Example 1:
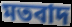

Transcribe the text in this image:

মতবাদ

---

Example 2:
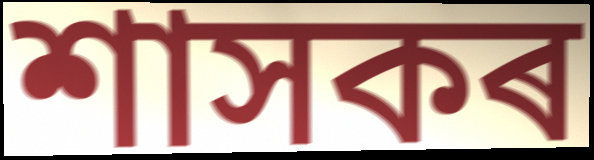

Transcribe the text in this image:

শাসকৰ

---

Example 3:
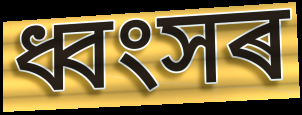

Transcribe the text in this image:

ধ্বংসৰ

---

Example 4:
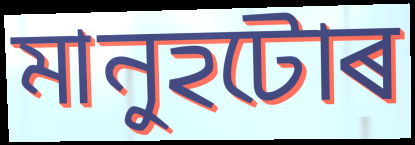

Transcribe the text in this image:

মানুহটোৰ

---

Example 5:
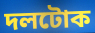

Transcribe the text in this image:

দলটোক